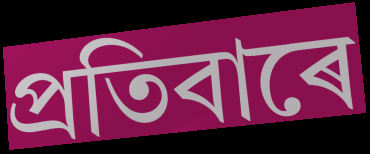
প্ৰতিবাৰে